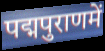
पद्मपुराणमें